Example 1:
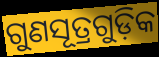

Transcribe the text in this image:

ଗୁଣସୂତ୍ରଗୁଡ଼ିକ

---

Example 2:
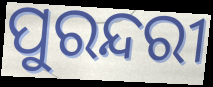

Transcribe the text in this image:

ପୁରନ୍ଦରୀ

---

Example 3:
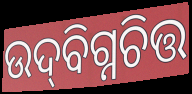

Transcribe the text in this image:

ଉଦ୍‌ବିଗ୍ନଚିତ୍ତ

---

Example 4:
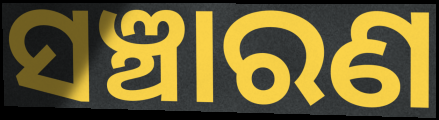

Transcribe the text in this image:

ସଞ୍ଚାରଣ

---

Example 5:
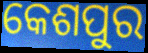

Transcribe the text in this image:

କେଶପୁର